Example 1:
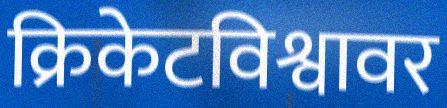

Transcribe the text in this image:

क्रिकेटविश्वावर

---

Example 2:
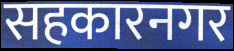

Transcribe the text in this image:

सहकारनगर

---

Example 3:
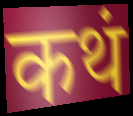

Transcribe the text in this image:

कथं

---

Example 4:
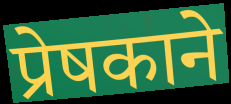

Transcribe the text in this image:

प्रेषकाने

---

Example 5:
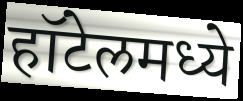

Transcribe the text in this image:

हॉटेलमध्ये